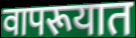
वापरूयात